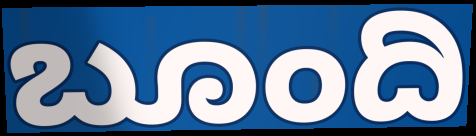
ಬೂಂದಿ